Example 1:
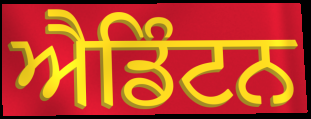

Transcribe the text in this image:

ਐਡਿੰਟਨ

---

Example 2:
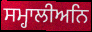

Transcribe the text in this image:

ਸਮ੍ਹਾਲੀਅਨਿ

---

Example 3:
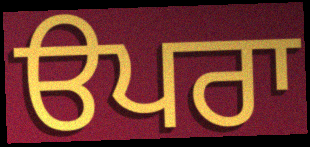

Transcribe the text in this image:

ੳਪਰਾ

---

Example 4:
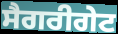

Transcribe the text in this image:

ਸੈਗਰੀਗੇਟ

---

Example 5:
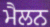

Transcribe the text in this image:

ਮੈਲਨ